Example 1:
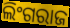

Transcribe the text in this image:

ଲିଂଗରାଜ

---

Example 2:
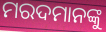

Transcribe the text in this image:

ମରଦମାନଙ୍କୁ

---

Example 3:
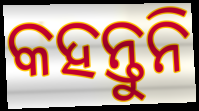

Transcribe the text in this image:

କହନ୍ତୁନି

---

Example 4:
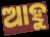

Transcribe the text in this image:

ଆହୁ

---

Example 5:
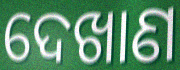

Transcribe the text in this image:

ଦେଖାଣ